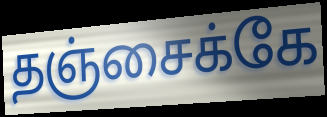
தஞ்சைக்கே